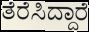
ತೆರೆಸಿದ್ದಾರೆ